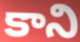
కాని